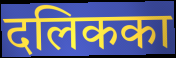
दलिकका